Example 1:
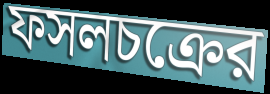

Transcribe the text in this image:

ফসলচক্রের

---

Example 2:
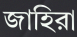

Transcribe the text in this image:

জাহিরা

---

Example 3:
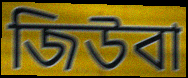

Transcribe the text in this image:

জিউবা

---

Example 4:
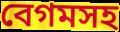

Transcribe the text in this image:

বেগমসহ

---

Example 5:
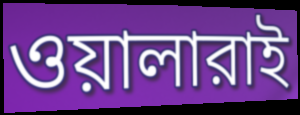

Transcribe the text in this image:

ওয়ালারাই